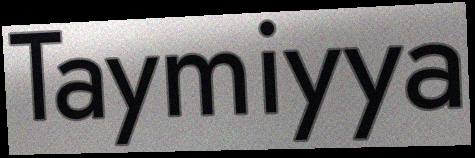
Taymiyya